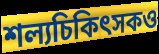
শল্যচিকিৎসকও